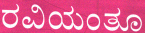
ರವಿಯಂತೂ